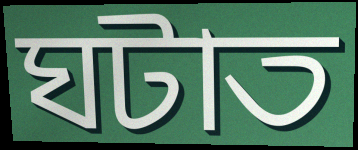
ঘটাত